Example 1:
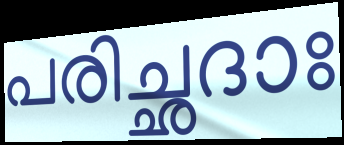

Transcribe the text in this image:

പരിച്ഛദാഃ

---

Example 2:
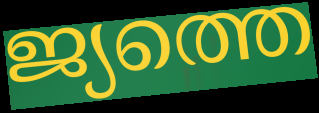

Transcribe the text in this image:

ജ്യത്തെ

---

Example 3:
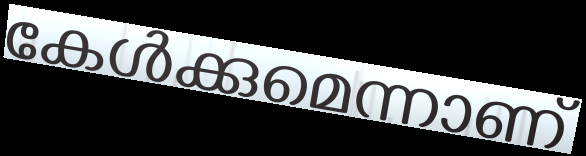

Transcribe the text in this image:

കേൾക്കുമെന്നാണ്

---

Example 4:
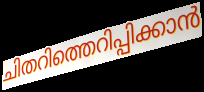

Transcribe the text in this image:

ചിതറിത്തെറിപ്പിക്കാൻ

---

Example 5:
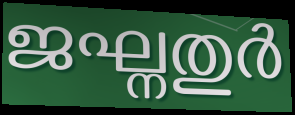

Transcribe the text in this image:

ജഘ്നതുർ